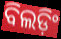
ବିଲଡ଼ିଂ